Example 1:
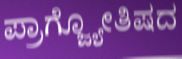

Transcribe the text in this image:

ಪ್ರಾಗ್ಜ್ಯೋತಿಷದ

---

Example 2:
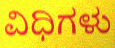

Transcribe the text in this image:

ವಿಧಿಗಳು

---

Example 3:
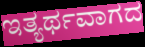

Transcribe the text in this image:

ಇತ್ಯರ್ಥವಾಗದ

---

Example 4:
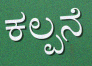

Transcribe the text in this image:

ಕಲ್ಪನೆ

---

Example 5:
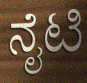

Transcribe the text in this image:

ನೈಟಿ